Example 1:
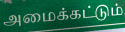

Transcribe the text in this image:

அமைக்கட்டும்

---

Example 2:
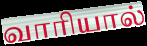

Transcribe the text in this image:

வாரியால்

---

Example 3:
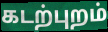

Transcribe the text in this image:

கடற்புறம்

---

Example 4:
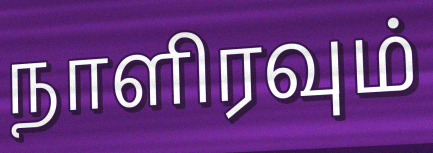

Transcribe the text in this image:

நாளிரவும்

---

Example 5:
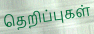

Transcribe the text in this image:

தெறிப்புகள்